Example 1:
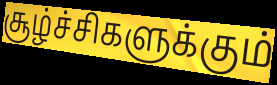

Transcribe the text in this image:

சூழ்ச்சிகளுக்கும்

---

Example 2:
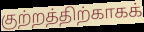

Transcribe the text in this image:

குற்றத்திற்காகக்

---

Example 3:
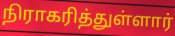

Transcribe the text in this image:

நிராகரித்துள்ளார்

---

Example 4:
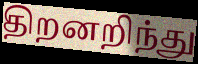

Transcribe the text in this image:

திறனறிந்து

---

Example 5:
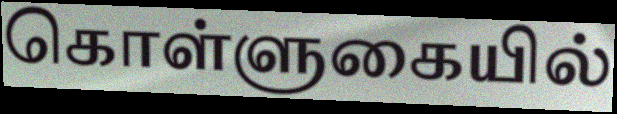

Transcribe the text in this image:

கொள்ளுகையில்